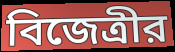
বিজেত্রীর